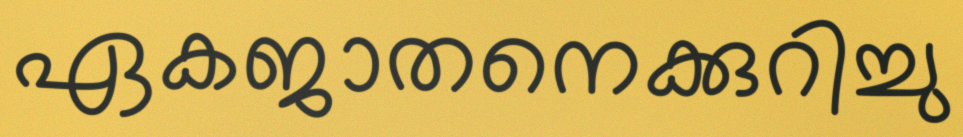
ഏകജാതനെക്കുറിച്ചു